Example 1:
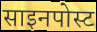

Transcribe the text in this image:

साइनपोस्ट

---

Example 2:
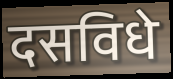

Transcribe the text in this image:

दसविधे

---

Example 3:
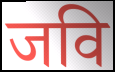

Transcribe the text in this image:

जवि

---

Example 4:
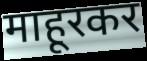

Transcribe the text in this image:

माहूरकर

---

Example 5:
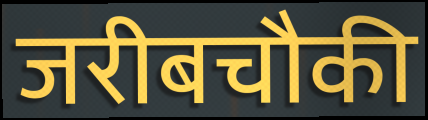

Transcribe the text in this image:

जरीबचौकी